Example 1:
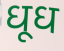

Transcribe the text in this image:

धूध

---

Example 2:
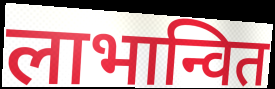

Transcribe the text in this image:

लाभान्वित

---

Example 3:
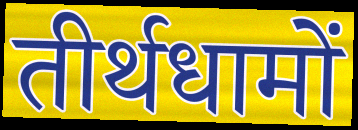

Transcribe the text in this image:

तीर्थधामों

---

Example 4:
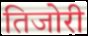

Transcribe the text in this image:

तिजोरी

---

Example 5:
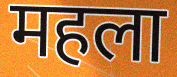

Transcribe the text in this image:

महला